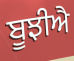
ਬੂਝੀਐ